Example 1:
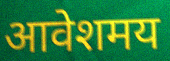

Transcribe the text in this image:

आवेशमय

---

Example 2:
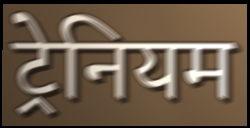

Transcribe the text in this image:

ट्रेनियम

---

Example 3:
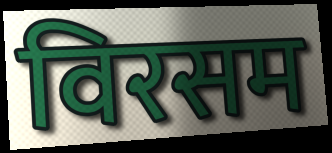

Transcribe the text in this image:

विरसम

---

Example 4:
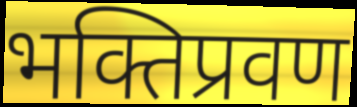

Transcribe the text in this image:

भक्तिप्रवण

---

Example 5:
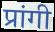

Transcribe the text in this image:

प्रांगी